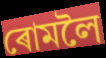
ৰোমলৈ